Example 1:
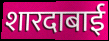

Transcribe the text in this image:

शारदाबाई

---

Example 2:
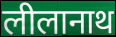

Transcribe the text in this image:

लीलानाथ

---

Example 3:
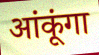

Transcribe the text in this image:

आंकूंगा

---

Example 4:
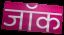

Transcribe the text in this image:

जॉक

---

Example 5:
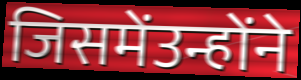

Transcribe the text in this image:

जिसमेंउन्होंने